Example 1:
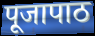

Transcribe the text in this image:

पूजापाठ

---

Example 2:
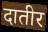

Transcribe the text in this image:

दातीर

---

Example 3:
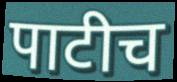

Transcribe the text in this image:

पाटीच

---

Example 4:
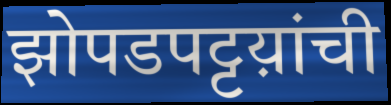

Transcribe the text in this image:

झोपडपट्टय़ांची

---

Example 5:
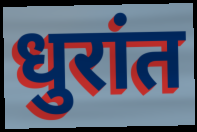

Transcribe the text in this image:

धुरांत